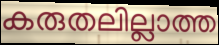
കരുതലില്ലാത്ത